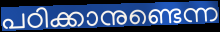
പഠിക്കാനുണ്ടെന്ന